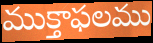
ముక్తాఫలము